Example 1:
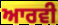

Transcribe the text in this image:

ਆਰਵੀ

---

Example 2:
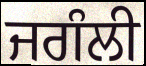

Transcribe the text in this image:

ਜਗੰਲੀ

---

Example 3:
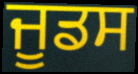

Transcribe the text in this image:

ਜੂਡਸ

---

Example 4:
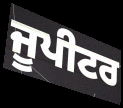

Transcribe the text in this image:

ਜੂਪੀਟਰ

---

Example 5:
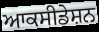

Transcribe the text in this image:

ਆਕਸੀਡੇਸ਼ਨ